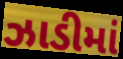
ઝાડીમાં